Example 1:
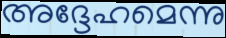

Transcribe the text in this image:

അദ്ദേഹമെന്നു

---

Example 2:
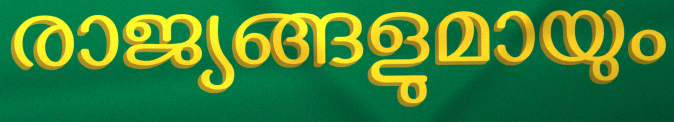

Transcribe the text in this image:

രാജ്യങ്ങളുമായും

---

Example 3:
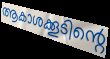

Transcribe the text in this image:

ആകാശക്കൂടിന്റെ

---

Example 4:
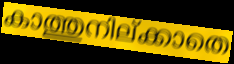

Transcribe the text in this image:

കാത്തുനില്ക്കാതെ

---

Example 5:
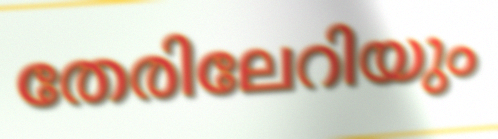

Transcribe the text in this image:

തേരിലേറിയും